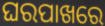
ଘରପାଖରେ